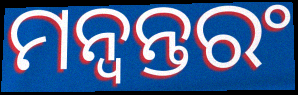
ମନ୍ବନ୍ତରଂ